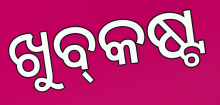
ଖୁବ୍‌କଷ୍ଟ